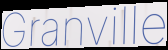
Granville